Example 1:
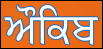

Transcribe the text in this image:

ਔਕਿਬ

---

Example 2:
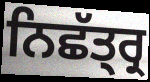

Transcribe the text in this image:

ਨਿਛੱਤ੍ਰ੍ਰ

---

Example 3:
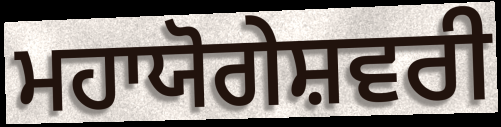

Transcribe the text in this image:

ਮਹਾਯੋਗੇਸ਼ਵਰੀ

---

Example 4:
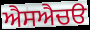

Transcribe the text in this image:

ਐਸਐਚੳ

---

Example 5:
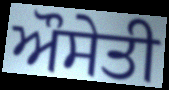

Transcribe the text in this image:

ਔਸੇਤੀ